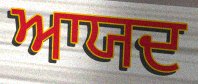
ਆਯਦ